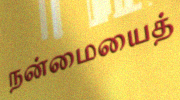
நன்மையைத்